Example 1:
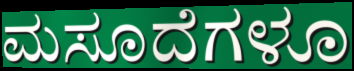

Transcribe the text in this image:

ಮಸೂದೆಗಳೂ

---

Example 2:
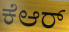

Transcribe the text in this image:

ಕೆಆರ್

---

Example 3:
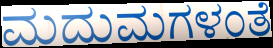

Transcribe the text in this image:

ಮದುಮಗಳಂತೆ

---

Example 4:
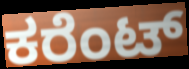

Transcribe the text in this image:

ಕರೆಂಟ್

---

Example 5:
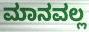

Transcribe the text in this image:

ಮಾನವಲ್ಲ